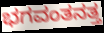
ಭಗವಂತನತ್ತ